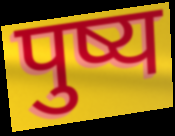
पुष्य